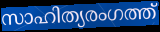
സാഹിത്യരംഗത്ത്